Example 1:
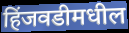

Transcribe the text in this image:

हिंजवडीमधील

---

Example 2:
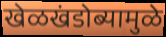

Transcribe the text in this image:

खेळखंडोब्यामुळे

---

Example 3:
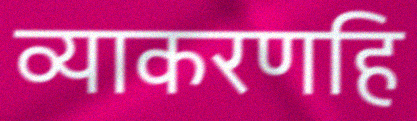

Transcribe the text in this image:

व्याकरणहि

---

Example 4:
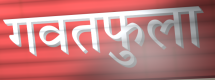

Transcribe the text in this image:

गवतफुला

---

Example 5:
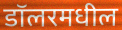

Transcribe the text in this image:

डॉलरमधील